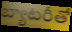
బ్యాటరీతో